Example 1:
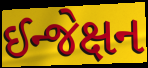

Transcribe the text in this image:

ઈન્જેક્ષન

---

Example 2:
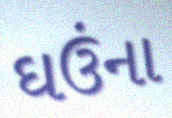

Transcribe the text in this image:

ઘઉંના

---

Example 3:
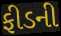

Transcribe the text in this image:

ફીડની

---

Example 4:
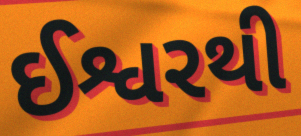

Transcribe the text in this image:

ઈશ્વરથી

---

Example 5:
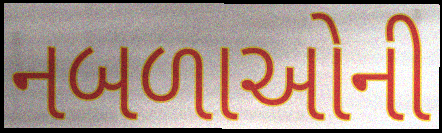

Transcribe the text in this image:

નબળાઓની